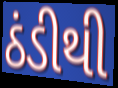
ઠંડીથી